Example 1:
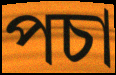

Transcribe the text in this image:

পচা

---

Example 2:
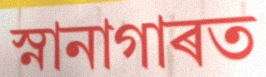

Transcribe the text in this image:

স্নানাগাৰত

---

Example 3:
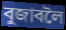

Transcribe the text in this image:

বুজাবলৈ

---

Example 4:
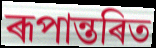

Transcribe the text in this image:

ৰূপান্তৰিত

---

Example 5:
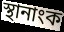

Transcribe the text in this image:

স্থানাংক